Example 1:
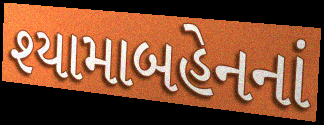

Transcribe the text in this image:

શ્યામાબહેનનાં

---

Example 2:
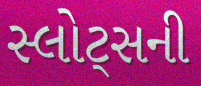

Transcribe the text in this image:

સ્લોટ્સની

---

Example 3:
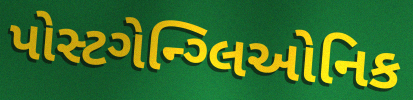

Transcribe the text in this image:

પોસ્ટગેન્ગ્લિઓનિક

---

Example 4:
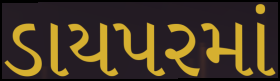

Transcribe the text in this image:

ડાયપરમાં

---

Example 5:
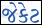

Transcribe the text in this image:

જેકેટ